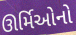
ઊર્મિઓનો